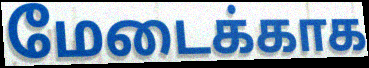
மேடைக்காக